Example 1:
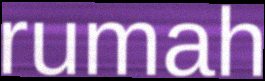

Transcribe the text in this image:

rumah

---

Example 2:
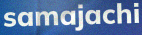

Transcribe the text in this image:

samajachi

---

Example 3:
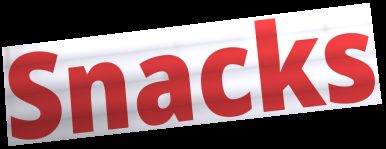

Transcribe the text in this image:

Snacks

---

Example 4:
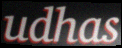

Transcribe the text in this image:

udhas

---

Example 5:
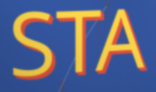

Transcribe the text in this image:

STA